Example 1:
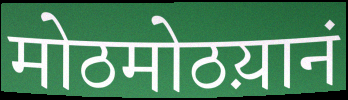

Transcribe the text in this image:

मोठमोठय़ानं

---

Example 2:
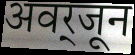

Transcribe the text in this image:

अवर्जून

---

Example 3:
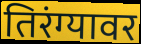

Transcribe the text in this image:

तिरंग्यावर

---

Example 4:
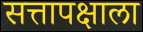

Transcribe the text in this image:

सत्तापक्षाला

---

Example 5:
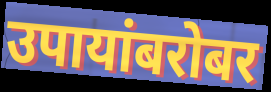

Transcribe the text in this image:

उपायांबरोबर